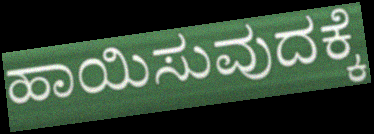
ಹಾಯಿಸುವುದಕ್ಕೆ